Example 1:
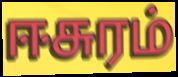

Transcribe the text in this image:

ஈசுரம்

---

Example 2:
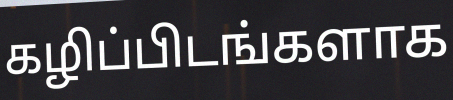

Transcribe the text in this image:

கழிப்பிடங்களாக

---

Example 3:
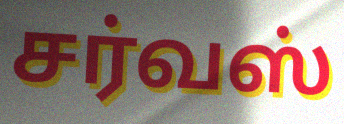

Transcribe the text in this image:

சர்வஸ்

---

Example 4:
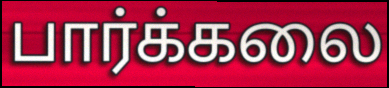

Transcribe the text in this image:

பார்க்கலை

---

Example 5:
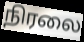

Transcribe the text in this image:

நிரலை